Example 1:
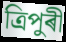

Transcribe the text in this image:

ত্ৰিপুৰী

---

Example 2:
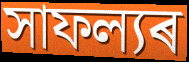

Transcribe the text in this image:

সাফল্যৰ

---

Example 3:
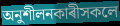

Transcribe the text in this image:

অনুশীলনকাৰীসকলে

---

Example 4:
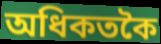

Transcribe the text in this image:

অধিকতকৈ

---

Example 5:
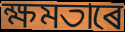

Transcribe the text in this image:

ক্ষমতাৰে